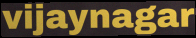
vijaynagar